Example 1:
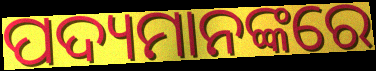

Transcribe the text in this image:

ପଦ୍ୟମାନଙ୍କରେ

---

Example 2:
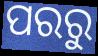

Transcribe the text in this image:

ପରରୁ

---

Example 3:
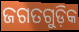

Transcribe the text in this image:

ଜଗତଗୁଡ଼ିକ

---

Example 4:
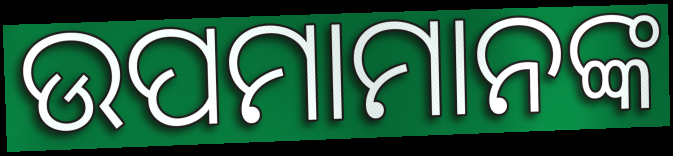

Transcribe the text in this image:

ଉପମାମାନଙ୍କ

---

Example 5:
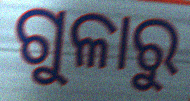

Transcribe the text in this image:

ଗୁଳାରୁ